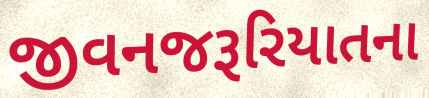
જીવનજરૂરિયાતના